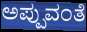
ಅಪ್ಪುವಂತೆ